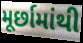
મૂર્છામાંથી